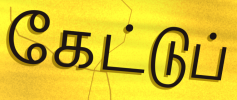
கேட்டுப்